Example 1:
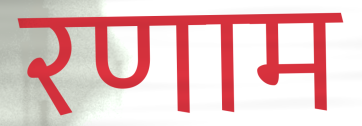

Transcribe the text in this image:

रणाम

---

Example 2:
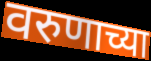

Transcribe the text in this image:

वरुणाच्या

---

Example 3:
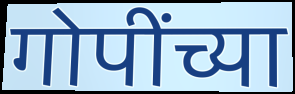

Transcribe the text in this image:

गोपींच्या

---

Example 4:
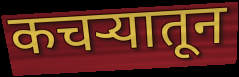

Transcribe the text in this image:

कचर्‍यातून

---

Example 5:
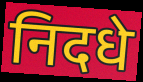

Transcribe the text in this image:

निदधे